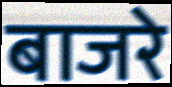
बाजरे